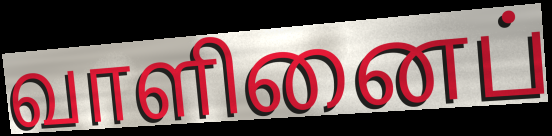
வாளினைப்